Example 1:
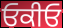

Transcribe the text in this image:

ਓਕੀਓ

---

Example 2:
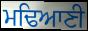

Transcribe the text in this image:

ਮਢਿਆਣੀ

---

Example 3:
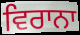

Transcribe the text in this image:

ਵਿਰਾਨਾ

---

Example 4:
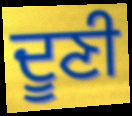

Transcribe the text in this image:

ਦੂਣੀ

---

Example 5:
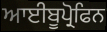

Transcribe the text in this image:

ਆਈਬੂਪ੍ਰੋਫਿਨ